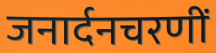
जनार्दनचरणीं